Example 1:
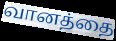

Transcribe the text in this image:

வானத்தை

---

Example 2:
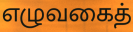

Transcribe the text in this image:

எழுவகைத்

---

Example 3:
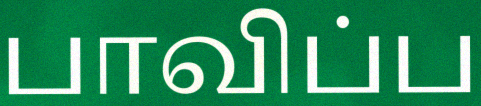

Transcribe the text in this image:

பாவிப்ப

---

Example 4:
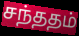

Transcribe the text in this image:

சந்ததம்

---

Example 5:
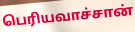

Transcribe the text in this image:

பெரியவாச்சான்